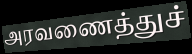
அரவணைத்துச்